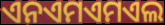
ଏନଏମଏମଏଲ